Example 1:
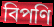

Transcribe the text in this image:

বিপণি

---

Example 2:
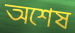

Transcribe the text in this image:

অশেষ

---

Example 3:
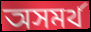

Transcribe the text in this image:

অসমৰ্থ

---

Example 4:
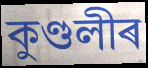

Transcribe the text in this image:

কুণ্ডলীৰ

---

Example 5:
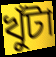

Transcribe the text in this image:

খুঁটা